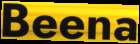
Beena